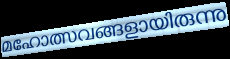
മഹോത്സവങ്ങളായിരുന്നു